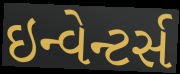
ઇન્વેન્ટર્સ